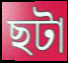
ছটা